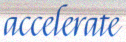
accelerate